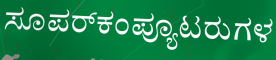
ಸೂಪರ್‌ಕಂಪ್ಯೂಟರುಗಳ